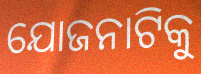
ଯୋଜନାଟିକୁ